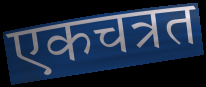
एकचत्रत